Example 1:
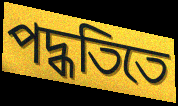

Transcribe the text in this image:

পদ্ধতিতে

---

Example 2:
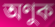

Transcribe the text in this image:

অণুক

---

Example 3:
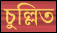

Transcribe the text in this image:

চুল্লিত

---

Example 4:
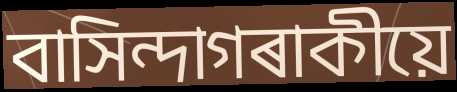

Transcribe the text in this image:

বাসিন্দাগৰাকীয়ে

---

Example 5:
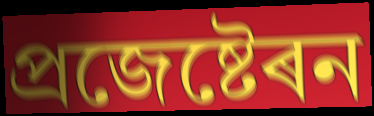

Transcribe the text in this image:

প্ৰজেষ্টেৰন